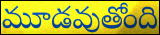
మూడవుతోంది